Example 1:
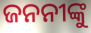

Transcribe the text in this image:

ଜନନୀଙ୍କୁ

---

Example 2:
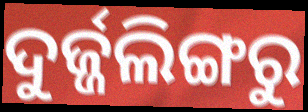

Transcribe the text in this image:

ଦୁର୍ଜ୍ଜଲିଙ୍ଗରୁ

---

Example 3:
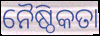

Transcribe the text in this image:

ନୈଷ୍ଠିକତା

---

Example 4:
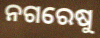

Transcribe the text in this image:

ନଗରେଷୁ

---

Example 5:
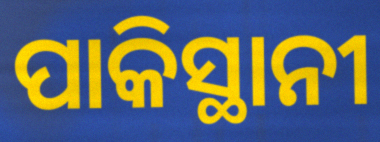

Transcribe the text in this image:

ପାକିସ୍ଥାନୀ